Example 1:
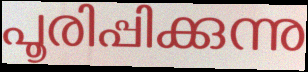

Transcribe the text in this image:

പൂരിപ്പിക്കുന്നു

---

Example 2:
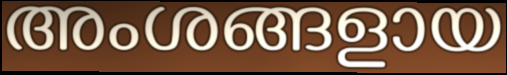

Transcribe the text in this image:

അംശങ്ങളായ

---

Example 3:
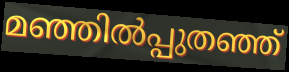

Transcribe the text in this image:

മഞ്ഞിൽപ്പുതഞ്ഞ്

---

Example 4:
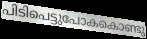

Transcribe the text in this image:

പിടിപെട്ടുപോകകൊണ്ടു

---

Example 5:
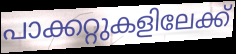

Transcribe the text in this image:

പാക്കറ്റുകളിലേക്ക്